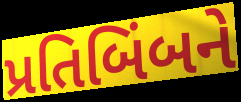
પ્રતિબિંબને